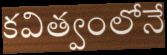
కవిత్వంలోనే